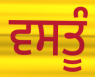
ਵਸਤੂੰ